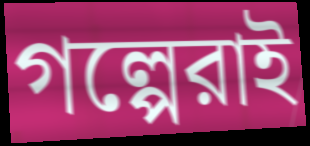
গল্পেরাই